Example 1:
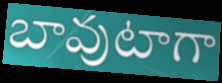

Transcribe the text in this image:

బావుటాగా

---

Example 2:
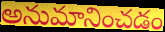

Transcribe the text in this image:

అనుమానించడం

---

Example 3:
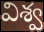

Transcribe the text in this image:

విశ్వ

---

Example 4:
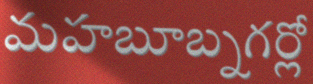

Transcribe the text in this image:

మహబూబ్నగర్లో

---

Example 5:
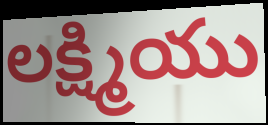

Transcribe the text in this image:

లక్ష్మియు